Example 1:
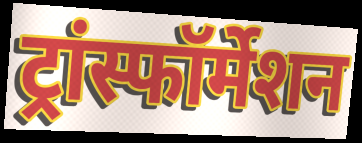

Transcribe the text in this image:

ट्रांस्फॉर्मेशन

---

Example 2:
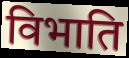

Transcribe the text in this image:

विभाति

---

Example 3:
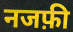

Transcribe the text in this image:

नजफ़ी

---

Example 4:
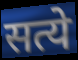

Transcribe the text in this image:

सत्ये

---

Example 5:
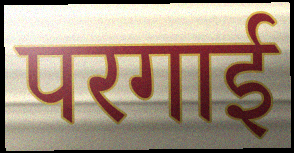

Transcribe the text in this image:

परगाई